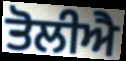
ਤੋਲੀਐ